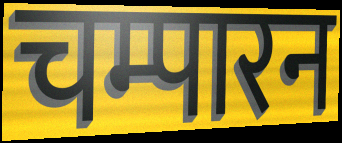
चम्पारन